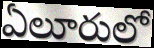
ఏలూరులో